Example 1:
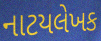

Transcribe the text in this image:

નાટયલેખક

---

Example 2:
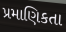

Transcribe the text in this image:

પ્રમાણિકતા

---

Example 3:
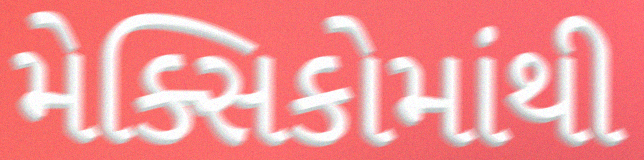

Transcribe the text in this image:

મેક્સિકોમાંથી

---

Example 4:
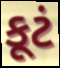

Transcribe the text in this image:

કૂટં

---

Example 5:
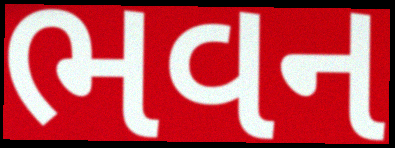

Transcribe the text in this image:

ભવન